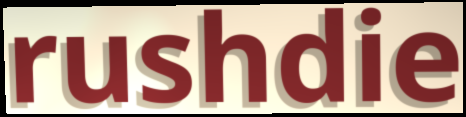
rushdie